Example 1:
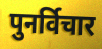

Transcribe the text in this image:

पुनर्विचार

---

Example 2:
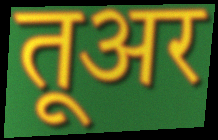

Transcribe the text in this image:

तूअर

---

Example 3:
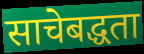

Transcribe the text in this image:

साचेबद्धता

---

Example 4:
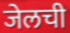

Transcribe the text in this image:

जेलची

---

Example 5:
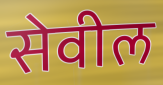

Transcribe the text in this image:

सेवील